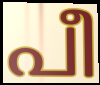
പീ